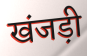
खंजड़ी